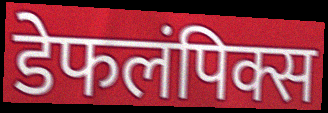
डेफलंपिक्स